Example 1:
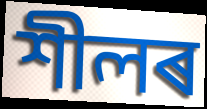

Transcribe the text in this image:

শীলৰ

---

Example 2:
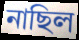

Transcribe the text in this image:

নাছিল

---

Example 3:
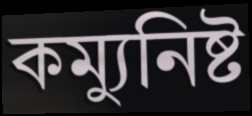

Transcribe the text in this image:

কম্যুনিষ্ট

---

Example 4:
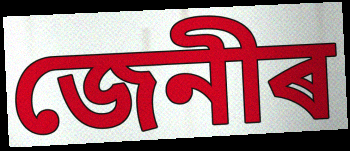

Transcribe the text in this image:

জেনীৰ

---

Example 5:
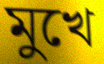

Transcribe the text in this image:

মুখে